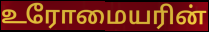
உரோமையரின்